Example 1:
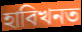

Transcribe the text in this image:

হাবিখনত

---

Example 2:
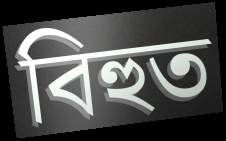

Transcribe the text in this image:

বিহুত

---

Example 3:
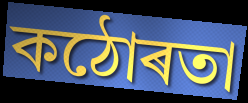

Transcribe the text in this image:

কঠোৰতা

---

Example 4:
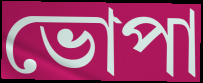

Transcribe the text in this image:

ভোপা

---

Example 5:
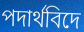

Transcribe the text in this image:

পদাৰ্থবিদে